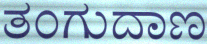
ತಂಗುದಾಣ